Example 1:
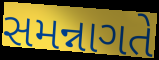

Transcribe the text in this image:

સમન્નાગતે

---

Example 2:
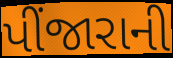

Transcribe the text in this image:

પીંજારાની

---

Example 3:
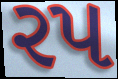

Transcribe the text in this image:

રપ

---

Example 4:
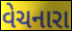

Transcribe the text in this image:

વેચનારા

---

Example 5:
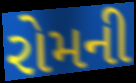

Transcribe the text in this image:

રોમની